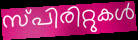
സ്പിരിറ്റുകൾ